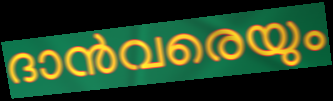
ദാൻവരെയും